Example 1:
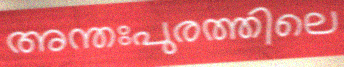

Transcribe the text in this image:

അന്തഃപുരത്തിലെ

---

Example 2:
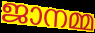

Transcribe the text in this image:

ജാനമ്മ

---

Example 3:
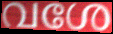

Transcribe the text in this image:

വശേ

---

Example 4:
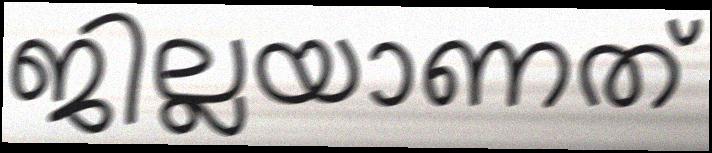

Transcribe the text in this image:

ജില്ലയാണത്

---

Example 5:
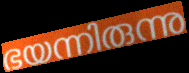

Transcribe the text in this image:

ഭയന്നിരുന്നു